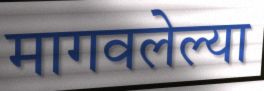
मागवलेल्या